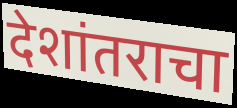
देशांतराचा